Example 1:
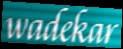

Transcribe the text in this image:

wadekar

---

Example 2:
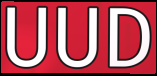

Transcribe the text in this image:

UUD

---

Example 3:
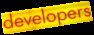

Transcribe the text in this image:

developers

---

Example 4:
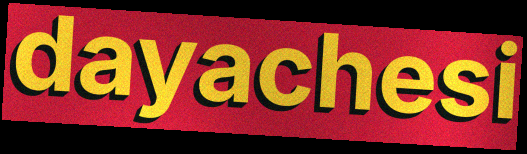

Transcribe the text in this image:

dayachesi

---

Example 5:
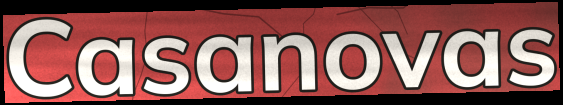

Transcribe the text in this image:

Casanovas